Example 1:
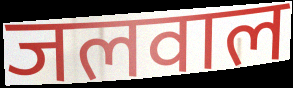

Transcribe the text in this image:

जलवाल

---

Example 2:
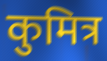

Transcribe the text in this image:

कुमित्र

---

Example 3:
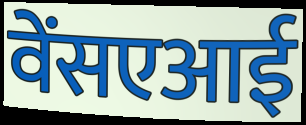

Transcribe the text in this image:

वेंसएआई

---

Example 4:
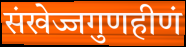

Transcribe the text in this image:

संखेज्जगुणहीणं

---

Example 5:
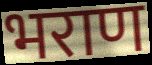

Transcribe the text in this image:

भराण